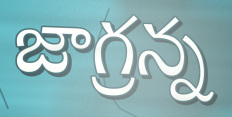
జాగ్రన్న